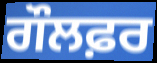
ਗੌਲਫ਼ਰ